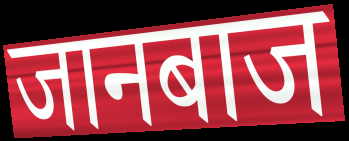
जानबाज